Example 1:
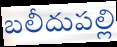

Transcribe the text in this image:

బలీదుపల్లి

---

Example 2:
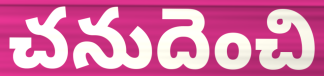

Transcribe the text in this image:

చనుదెంచి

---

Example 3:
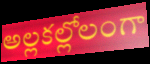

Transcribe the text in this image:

అల్లకల్లోలంగా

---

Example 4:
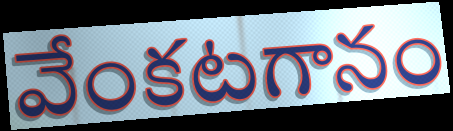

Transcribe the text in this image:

వేంకటగానం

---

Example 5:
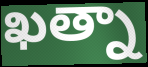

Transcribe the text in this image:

ఖత్నా